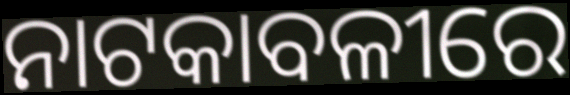
ନାଟକାବଳୀରେ